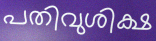
പതിവുശിക്ഷ